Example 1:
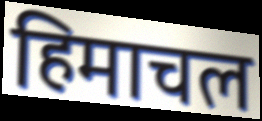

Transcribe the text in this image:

हिमाचल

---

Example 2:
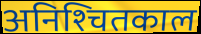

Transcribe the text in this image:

अनिश्चितकाल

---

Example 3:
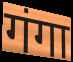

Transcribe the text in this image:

गंगा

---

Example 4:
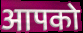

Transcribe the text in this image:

आपको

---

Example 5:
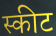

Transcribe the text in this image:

स्कीट